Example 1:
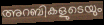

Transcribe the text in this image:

അറബികളുടെയും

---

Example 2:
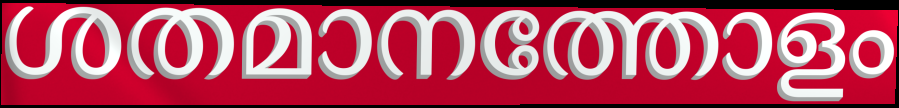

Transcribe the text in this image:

ശതമാനത്തോളം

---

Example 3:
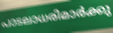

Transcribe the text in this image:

പാടലാധരിമാർക്കു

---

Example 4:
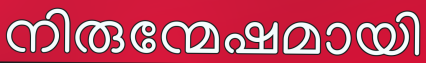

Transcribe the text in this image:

നിരുന്മേഷമായി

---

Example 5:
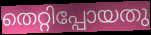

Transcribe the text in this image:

തെറ്റിപ്പോയതു